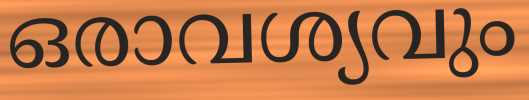
ഒരാവശ്യവും